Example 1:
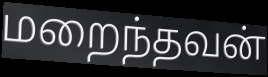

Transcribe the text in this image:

மறைந்தவன்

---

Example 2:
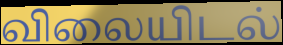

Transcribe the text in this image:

விலையிடல்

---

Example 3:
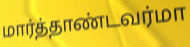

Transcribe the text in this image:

மார்த்தாண்டவர்மா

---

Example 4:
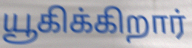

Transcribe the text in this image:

யூகிக்கிறார்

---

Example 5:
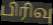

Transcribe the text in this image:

பிரிவு